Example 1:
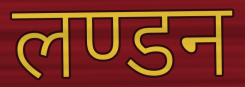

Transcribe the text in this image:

लण्डन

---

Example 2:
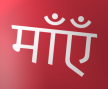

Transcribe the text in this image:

माँएँ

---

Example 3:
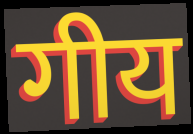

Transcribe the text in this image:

गीय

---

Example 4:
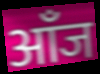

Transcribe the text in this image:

आँज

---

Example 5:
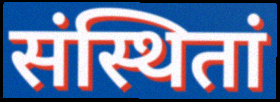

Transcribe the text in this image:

संस्थितां